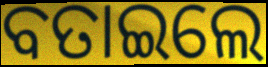
ବତାଇଲେ